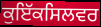
ਕੁਇੱਕਸਿਲਵਰ